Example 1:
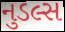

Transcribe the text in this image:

નુડલ્સ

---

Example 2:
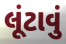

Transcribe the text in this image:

લૂંટાવું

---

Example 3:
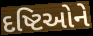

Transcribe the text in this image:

દષ્ટિઓને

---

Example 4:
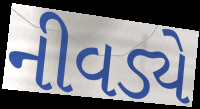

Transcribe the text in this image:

નીવડ્યે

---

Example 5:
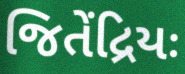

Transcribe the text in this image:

જિતેંદ્રિયઃ